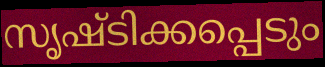
സൃഷ്ടിക്കപ്പെടും